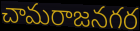
చామరాజనగర